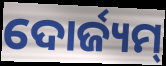
ଦୋର୍ଜ୍ୟମ୍